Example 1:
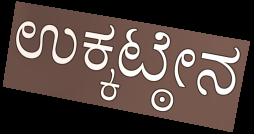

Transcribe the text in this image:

ಉಕ್ಕಟ್ಠೇನ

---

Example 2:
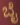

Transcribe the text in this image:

ಬೈ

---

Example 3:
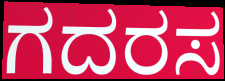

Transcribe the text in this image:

ಗದರಸ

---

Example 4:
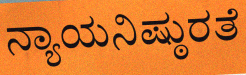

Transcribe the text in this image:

ನ್ಯಾಯನಿಷ್ಠುರತೆ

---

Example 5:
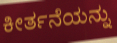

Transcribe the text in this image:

ಕೀರ್ತನೆಯನ್ನು